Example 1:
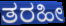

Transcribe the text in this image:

ತರಹೀ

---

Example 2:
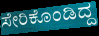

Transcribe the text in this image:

ಸೇರಿಕೊಂಡಿದ್ದ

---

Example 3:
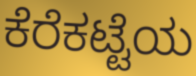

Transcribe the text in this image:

ಕೆರೆಕಟ್ಟೆಯ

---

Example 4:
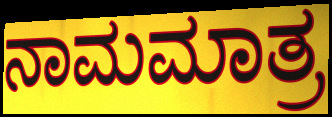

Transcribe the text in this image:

ನಾಮಮಾತ್ರ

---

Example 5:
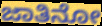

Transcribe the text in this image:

ಜಾತಿನೋ